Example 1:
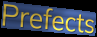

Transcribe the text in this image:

Prefects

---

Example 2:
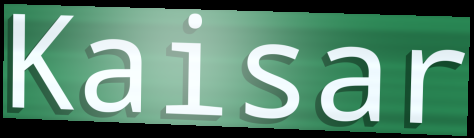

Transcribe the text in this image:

Kaisar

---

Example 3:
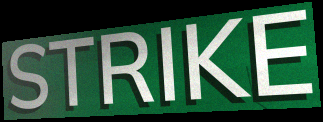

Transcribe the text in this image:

STRIKE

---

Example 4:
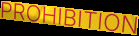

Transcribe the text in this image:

PROHIBITION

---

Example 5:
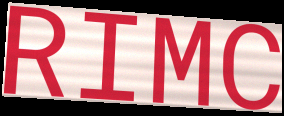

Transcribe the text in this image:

RIMC